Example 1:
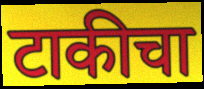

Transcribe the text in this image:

टाकीचा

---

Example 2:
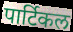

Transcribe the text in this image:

पार्टिकल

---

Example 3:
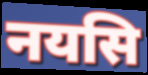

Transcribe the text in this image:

नयसि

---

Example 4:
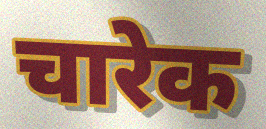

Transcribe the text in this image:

चारेक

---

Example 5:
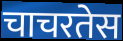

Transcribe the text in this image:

चाचरतेस